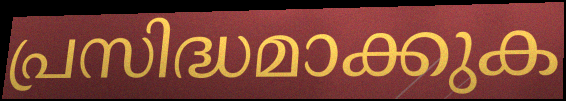
പ്രസിദ്ധമാക്കുക